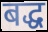
बद्ध